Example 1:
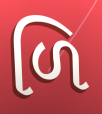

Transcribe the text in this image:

ળિ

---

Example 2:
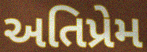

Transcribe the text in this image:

અતિપ્રેમ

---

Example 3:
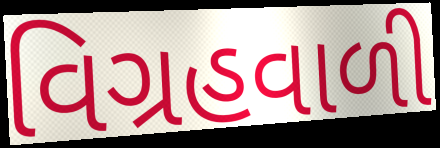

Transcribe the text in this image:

વિગ્રહવાળી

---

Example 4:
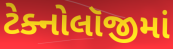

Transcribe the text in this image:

ટેક્નોલૉજીમાં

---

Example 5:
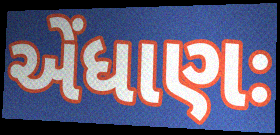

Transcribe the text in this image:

એંધાણઃ